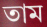
তাম